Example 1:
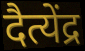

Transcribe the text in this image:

दैत्येंद्र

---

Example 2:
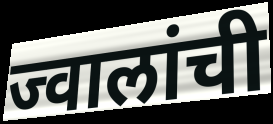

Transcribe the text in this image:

ज्वालांची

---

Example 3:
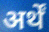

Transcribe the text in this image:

अर्थें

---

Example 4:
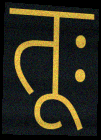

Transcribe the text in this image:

तूः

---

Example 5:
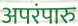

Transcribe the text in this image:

अपरंपारु